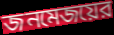
জনমেজয়ের